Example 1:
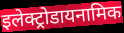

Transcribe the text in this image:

इलेक्ट्रोडायनामिक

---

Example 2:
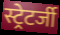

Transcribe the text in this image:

स्ट्रेटर्जी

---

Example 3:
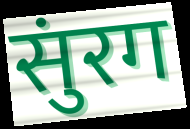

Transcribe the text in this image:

सुंरग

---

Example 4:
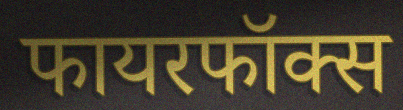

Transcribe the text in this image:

फायरफॉक्स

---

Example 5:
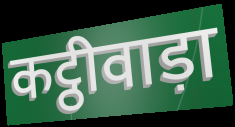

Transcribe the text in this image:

कट्ठीवाड़ा